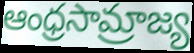
ఆంధ్రసామ్రాజ్య